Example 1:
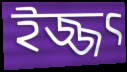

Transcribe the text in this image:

ইজ্জৎ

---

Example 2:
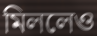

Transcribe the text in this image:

মিললেও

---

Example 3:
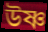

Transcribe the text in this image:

উষ্ণ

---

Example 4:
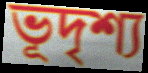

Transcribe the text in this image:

ভূদৃশ্য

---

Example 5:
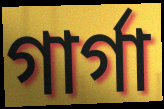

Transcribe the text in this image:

গার্গা